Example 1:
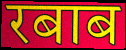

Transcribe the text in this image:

रबाब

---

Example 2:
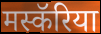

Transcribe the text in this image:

मस्कॅरिया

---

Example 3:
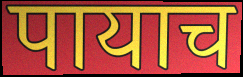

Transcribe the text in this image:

पायाच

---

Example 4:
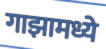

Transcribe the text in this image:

गाझामध्ये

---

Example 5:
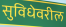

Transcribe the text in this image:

सुविधेवरील